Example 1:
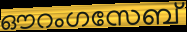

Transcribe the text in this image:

ഔറംഗസേബ്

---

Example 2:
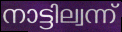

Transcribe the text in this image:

നാട്ടില്വന്ന്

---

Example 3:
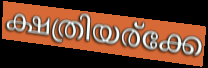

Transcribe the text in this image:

ക്ഷത്രിയര്ക്കേ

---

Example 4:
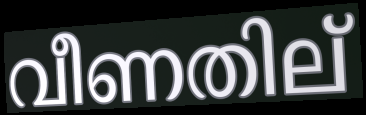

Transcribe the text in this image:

വീണതില്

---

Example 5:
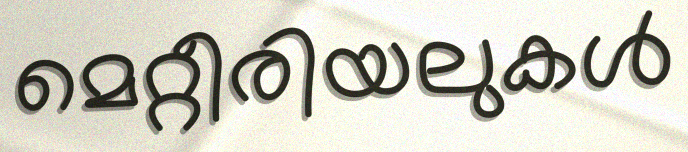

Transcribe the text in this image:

മെറ്റീരിയലുകൾ